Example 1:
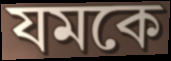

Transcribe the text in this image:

যমকে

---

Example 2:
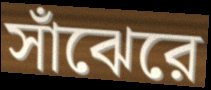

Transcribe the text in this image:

সাঁঝেরে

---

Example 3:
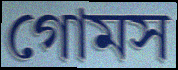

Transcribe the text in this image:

গোমস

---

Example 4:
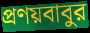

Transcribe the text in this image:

প্রণয়বাবুর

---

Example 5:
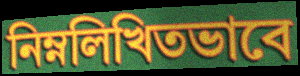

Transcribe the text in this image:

নিম্নলিখিতভাবে